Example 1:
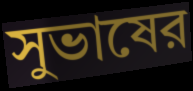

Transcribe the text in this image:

সুভাষের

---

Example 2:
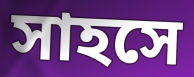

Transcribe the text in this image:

সাহসে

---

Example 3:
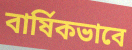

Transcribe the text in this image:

বার্ষিকভাবে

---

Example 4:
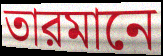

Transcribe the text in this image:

তারমানে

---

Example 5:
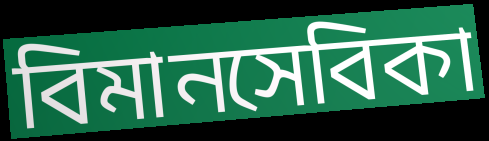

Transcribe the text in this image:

বিমানসেবিকা